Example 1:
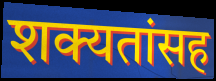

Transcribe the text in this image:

शक्यतांसह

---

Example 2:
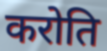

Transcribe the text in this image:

करोति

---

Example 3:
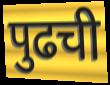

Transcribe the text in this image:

पुढची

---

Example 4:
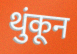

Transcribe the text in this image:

थुंकून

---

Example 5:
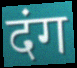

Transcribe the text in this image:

दंग